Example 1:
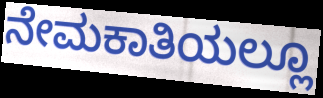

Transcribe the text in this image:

ನೇಮಕಾತಿಯಲ್ಲೂ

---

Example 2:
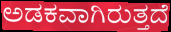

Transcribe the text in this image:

ಅಡಕವಾಗಿರುತ್ತದೆ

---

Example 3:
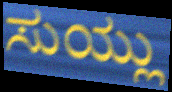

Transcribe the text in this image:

ಸುಯ್ಲು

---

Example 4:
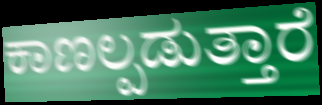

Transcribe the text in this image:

ಕಾಣಲ್ಪಡುತ್ತಾರೆ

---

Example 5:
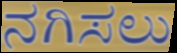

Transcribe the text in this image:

ನಗಿಸಲು